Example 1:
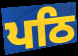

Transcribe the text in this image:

ਪਠਿ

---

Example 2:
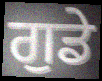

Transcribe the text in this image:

ਗੁਡੇ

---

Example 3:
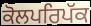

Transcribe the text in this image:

ਕੋਲਪਰਿਪੱਕ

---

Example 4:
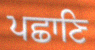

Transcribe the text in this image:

ਪਛਾਣਿ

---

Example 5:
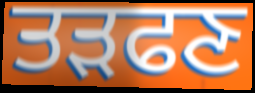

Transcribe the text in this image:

ਤੜਫਣ